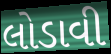
લોડાવી